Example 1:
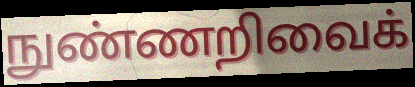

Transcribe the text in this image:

நுண்ணறிவைக்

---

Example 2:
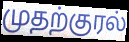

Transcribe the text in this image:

முதற்குரல்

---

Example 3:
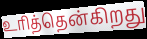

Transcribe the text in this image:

உரித்தென்கிறது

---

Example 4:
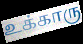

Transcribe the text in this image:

உக்காரு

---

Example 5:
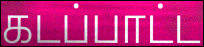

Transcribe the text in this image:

கடப்பாட்ட